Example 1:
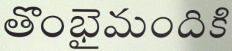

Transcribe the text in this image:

తొంభైమందికి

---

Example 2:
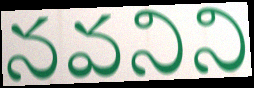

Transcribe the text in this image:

నవనిని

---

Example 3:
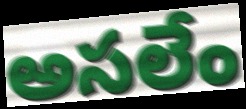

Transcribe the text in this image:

అసలేం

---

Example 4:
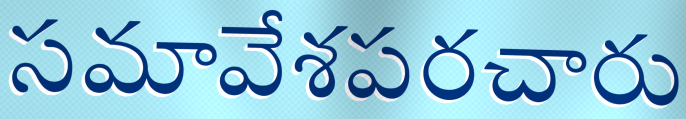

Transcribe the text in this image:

సమావేశపరచారు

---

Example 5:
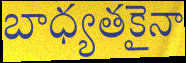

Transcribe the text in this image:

బాధ్యతకైనా